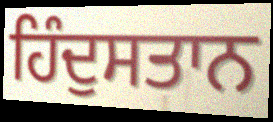
ਹਿੰਦੁਸਤਾਨ